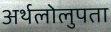
अर्थलोलुपता